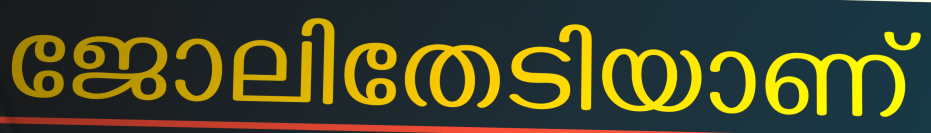
ജോലിതേടിയാണ്